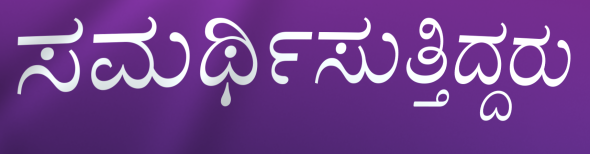
ಸಮರ್ಥಿಸುತ್ತಿದ್ದರು